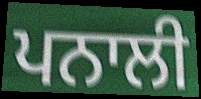
ਪਨਾਲੀ